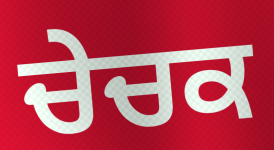
ਚੇਚਕ